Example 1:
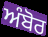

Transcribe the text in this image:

ਅੰਬੋਰ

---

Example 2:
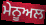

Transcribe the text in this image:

ਮੇਨੂਅਲ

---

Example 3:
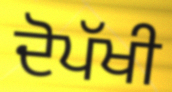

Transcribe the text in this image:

ਦੋਪੱਖੀ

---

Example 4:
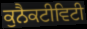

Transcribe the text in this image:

ਕੁਨੈਕਟੀਵਿਟੀ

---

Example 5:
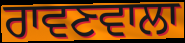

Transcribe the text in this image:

ਰਾਵਣਵਾਲਾ